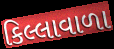
કિલ્લાવાળા